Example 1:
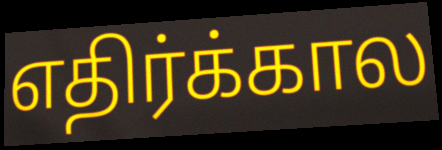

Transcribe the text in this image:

எதிர்க்கால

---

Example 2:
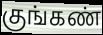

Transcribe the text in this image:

குங்கண்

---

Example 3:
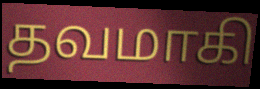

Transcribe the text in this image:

தவமாகி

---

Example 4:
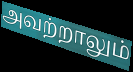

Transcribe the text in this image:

அவற்றாலும்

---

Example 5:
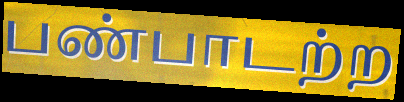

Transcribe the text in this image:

பண்பாடற்ற